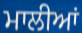
ਮਾਲੀਆਂ